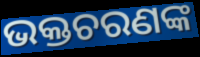
ଭକ୍ତଚରଣଙ୍କ